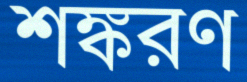
শঙ্করণ